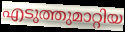
എടുത്തുമാറ്റിയ